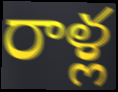
రాళ్ల